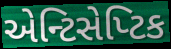
એન્ટિસેપ્ટિક